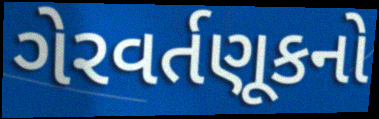
ગેરવર્તણૂકનો